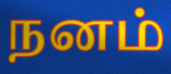
நனம்